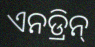
ଏନଡ୍ରିନ୍